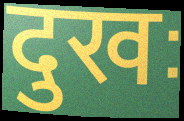
दुखः